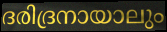
ദരിദ്രനായാലും